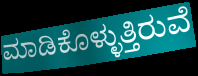
ಮಾಡಿಕೊಳ್ಳುತ್ತಿರುವೆ